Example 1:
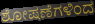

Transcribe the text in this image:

ಶೋಷಣೆಗಳಿಂದ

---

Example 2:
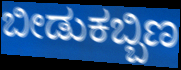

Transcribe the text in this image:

ಬೀಡುಕಬ್ಬಿಣ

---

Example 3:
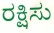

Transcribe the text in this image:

ರಕ್ಷಿಸು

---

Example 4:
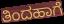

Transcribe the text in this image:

ತಿಂದಹಾಗೆ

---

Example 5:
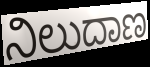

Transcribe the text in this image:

ನಿಲುದಾಣ